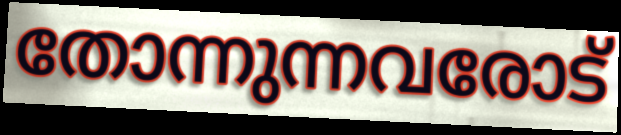
തോന്നുന്നവരോട്